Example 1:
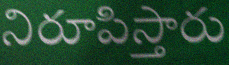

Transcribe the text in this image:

నిరూపిస్తారు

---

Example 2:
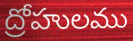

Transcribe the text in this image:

ద్రోహులము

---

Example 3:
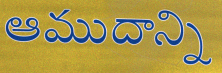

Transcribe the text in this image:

ఆముదాన్ని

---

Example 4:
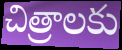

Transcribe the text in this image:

చిత్రాలకు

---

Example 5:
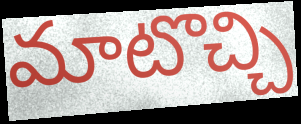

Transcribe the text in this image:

మాటొచ్చి